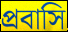
প্রবাসি